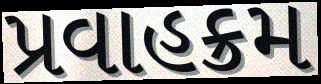
પ્રવાહક્રમ